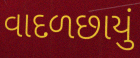
વાદળછાયું